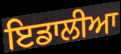
ਇਡਾਲੀਆ